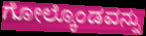
ಗೋಲ್ಕೊಂಡವನ್ನು